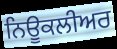
ਨਿਊਕਲੀਅਰ